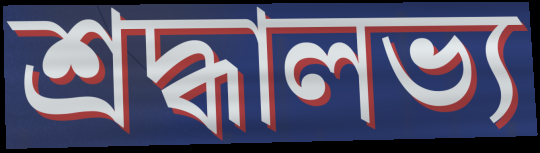
শ্রদ্ধালভ্য